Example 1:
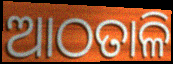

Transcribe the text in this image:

ଆଠତାଳି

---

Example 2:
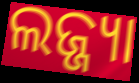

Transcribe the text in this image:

ଲଜ୍ଜ୍ୟା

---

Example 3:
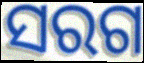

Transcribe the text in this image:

ସରଗ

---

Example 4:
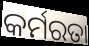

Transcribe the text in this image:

କର୍ମରତା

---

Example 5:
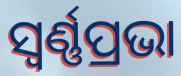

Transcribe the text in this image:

ସ୍ୱର୍ଣ୍ଣପ୍ରଭା